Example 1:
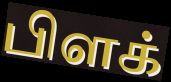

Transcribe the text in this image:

பிளக்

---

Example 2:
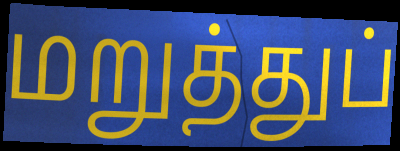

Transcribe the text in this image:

மறுத்துப்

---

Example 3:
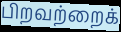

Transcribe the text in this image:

பிறவற்றைக்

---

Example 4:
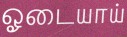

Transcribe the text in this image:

ஓடையாய்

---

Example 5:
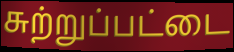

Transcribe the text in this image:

சுற்றுப்பட்டை